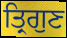
ਤ੍ਰਿਗੁਣ